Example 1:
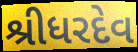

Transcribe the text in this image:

શ્રીધરદેવ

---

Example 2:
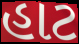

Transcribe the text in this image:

હાટ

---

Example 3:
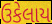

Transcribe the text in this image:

ઉકેલાય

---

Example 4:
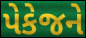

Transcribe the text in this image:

પેકેજને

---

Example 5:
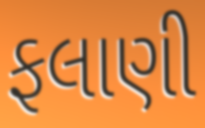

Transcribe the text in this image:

ફલાણી